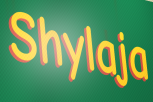
Shylaja